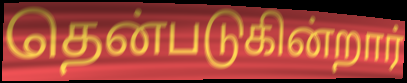
தென்படுகின்றார்